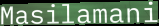
Masilamani